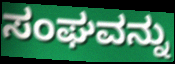
ಸಂಘವನ್ನು